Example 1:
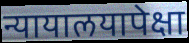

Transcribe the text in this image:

न्यायालयापेक्षा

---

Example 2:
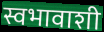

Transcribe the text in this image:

स्वभावाशी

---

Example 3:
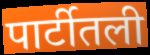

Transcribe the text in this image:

पार्टीतली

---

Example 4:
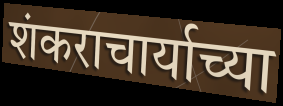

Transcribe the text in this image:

शंकराचार्याच्या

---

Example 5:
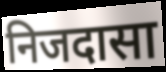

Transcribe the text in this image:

निजदासा